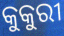
କୁକୁରୀ